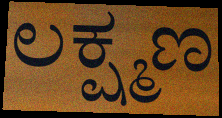
ಲಕ್ಷ್ಮಣ